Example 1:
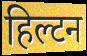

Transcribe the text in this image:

हिल्टन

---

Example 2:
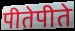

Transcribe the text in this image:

पीतेपीते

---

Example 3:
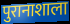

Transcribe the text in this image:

पुरानाशाला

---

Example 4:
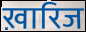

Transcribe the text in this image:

ख़ारिज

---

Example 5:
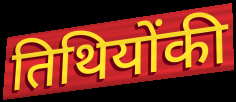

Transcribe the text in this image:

तिथियोंकी